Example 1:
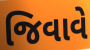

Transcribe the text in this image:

જિવાવે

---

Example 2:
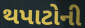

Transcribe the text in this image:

થપાટોની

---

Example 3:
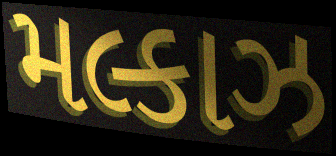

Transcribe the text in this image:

મલ્કાઝ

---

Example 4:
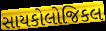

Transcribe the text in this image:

સાયકોલોજિકલ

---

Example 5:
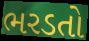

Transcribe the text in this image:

ભરડતો